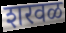
शरवळ